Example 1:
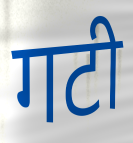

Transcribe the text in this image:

गटी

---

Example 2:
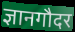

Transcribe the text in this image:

ज्ञानगौदर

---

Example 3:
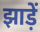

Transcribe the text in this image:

झाड़ें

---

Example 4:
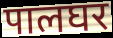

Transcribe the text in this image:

पालघर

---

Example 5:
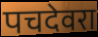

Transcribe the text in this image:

पचदेवरा